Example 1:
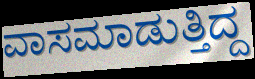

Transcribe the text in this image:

ವಾಸಮಾಡುತ್ತಿದ್ದ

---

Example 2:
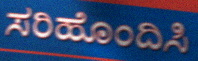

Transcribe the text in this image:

ಸರಿಹೊಂದಿಸಿ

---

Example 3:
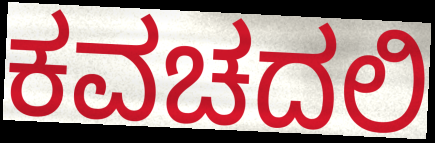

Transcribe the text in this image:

ಕವಚದಲಿ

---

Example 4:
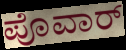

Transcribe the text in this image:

ಪೊವಾರ್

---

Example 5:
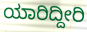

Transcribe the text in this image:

ಯಾರಿದ್ದೀರಿ